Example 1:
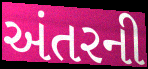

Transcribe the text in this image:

અંતરની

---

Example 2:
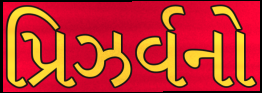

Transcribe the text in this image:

પ્રિઝર્વનો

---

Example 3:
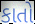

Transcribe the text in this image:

કાતો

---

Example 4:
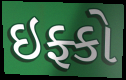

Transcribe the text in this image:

ઇફ્કો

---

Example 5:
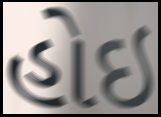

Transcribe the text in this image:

હોઇ